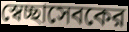
স্বেচ্ছাসেবকের